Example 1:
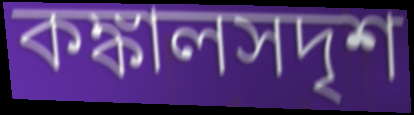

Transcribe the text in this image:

কঙ্কালসদৃশ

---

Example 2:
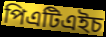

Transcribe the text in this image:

পিএটিএইচ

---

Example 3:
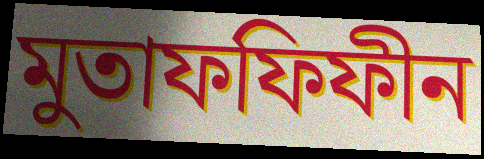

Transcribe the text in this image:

মুতাফফিফীন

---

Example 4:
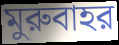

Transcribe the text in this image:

মুরুবাহর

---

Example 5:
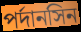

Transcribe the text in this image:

পর্দানসিন